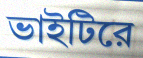
ভাইটিরে